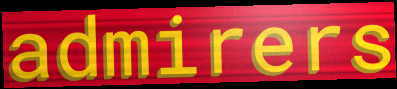
admirers